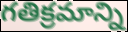
గతిక్రమాన్ని